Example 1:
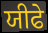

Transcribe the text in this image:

ਯੀਫੇ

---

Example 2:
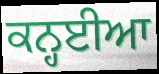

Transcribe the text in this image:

ਕਨ੍ਹਈਆ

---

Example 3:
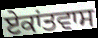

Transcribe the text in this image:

ਏਕਾਂਤਵਾਸ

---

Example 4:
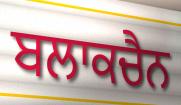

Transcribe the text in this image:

ਬਲਾਕਚੈਨ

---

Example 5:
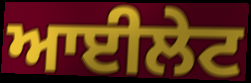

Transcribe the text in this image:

ਆਈਲੇਟ